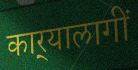
कार्यालागीं